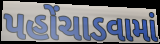
પહોંચાડવામાં